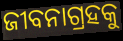
ଜୀବନାଗ୍ରହକୁ